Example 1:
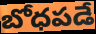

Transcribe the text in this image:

బోధపడే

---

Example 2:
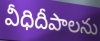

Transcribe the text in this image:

వీధిదీపాలను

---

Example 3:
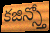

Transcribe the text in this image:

కజిన్స్తో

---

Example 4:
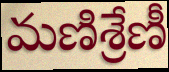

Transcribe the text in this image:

మణిశ్రేణీ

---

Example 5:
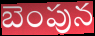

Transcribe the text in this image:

బెంపున